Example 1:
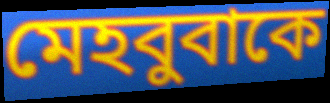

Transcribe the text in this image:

মেহবুবাকে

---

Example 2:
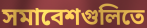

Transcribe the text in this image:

সমাবেশগুলিতে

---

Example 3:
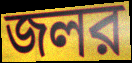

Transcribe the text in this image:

জলর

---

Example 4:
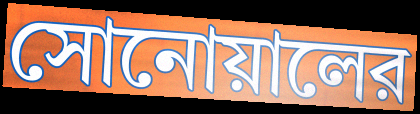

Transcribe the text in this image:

সোনোয়ালের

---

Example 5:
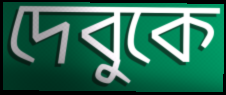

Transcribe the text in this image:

দেবুকে